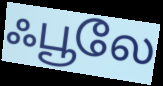
ஃபூலே